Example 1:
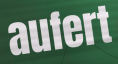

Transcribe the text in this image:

aufert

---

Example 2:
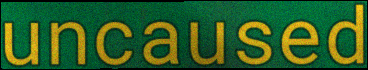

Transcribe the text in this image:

uncaused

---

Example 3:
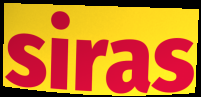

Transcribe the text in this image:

siras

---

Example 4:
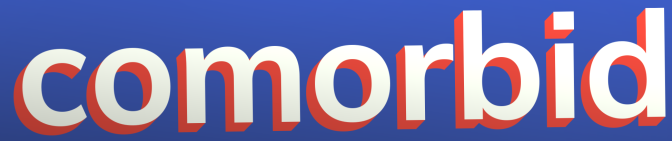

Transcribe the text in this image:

comorbid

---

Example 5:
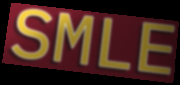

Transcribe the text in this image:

SMLE